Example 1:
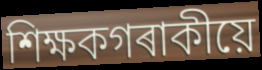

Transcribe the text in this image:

শিক্ষকগৰাকীয়ে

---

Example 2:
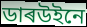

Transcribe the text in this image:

ডাৰউইনে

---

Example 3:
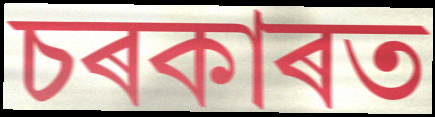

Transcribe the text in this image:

চৰকাৰত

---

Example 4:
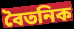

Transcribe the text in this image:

বৈতনিক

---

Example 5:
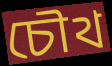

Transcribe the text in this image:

চৌথ